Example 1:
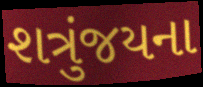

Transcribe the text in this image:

શત્રુંજયના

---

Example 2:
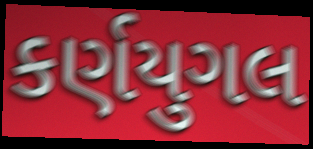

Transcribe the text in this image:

કર્ણયુગલ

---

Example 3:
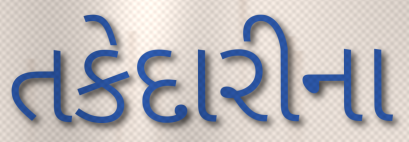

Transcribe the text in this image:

તકેદારીના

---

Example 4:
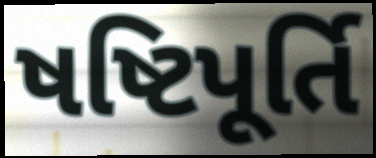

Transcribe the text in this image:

ષષ્ટિપૂર્તિ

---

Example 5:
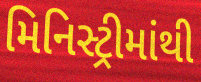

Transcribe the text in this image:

મિનિસ્ટ્રીમાંથી